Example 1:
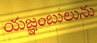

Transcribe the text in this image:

యజ్ఞంబులును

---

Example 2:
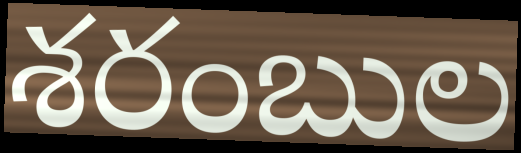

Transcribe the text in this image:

శరంబుల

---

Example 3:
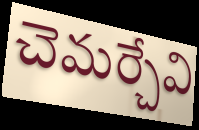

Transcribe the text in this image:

చెమర్చేవి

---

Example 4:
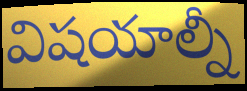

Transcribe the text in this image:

విషయాల్నీ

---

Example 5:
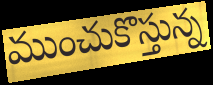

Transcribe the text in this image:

ముంచుకొస్తున్న